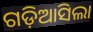
ଗଡ଼ିଆସିଲା